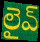
లైవ్